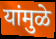
यांमुळे